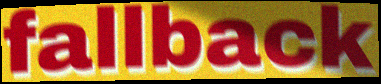
fallback